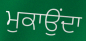
ਮੁਕਾਉਂਦਾ